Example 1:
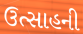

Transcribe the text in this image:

ઉત્સાહની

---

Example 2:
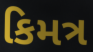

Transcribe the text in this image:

કિમત્ર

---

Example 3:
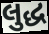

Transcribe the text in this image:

લુદ્ધ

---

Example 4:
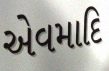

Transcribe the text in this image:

એવમાદિ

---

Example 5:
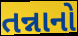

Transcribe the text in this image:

તન્નાનો